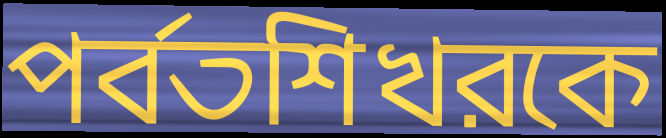
পর্বতশিখরকে